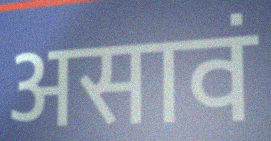
असावं